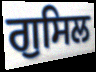
ਗੁਸਿਲ